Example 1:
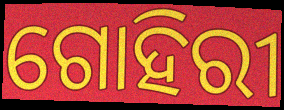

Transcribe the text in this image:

ଗୋହିରୀ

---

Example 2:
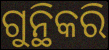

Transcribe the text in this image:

ଗୁନ୍ଥିକରି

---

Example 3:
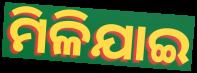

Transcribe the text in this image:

ମିଳିଯାଇ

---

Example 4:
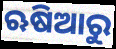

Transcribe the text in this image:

ଋଷିଆରୁ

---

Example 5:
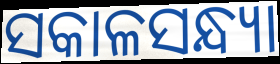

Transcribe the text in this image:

ସକାଳସନ୍ଧ୍ୟା